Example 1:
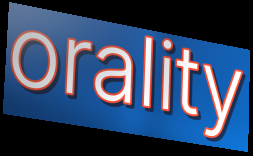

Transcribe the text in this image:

orality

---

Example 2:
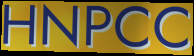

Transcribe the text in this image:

HNPCC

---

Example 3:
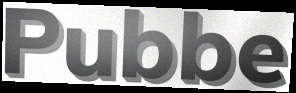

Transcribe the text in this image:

Pubbe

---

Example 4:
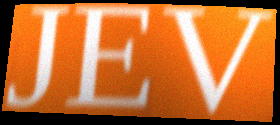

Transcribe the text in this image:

JEV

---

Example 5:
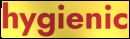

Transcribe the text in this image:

hygienic